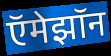
ऍमेझॉन